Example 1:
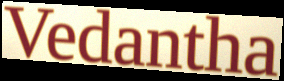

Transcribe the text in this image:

Vedantha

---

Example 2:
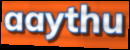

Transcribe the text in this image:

aaythu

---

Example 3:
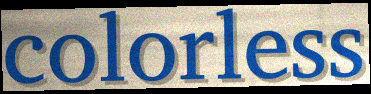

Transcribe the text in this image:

colorless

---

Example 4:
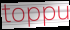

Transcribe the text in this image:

toppu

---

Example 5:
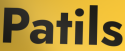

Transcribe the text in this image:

Patils